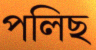
পলিছ